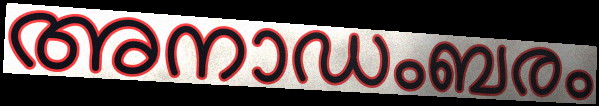
അനാഡംബരം